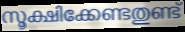
സൂക്ഷിക്കേണ്ടതുണ്ട്